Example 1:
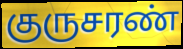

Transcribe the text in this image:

குருசரண்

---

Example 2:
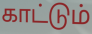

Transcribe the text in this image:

காட்டும்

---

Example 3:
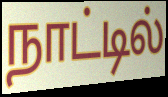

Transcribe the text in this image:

நாட்டில்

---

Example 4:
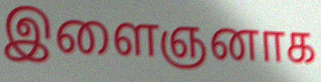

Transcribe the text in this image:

இளைஞனாக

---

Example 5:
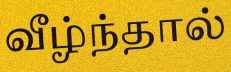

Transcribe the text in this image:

வீழ்ந்தால்